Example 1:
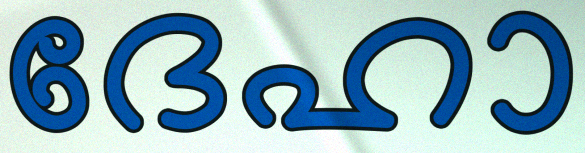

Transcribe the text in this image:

ദേഹാ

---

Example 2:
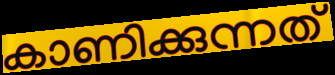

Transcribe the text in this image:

കാണിക്കുന്നത്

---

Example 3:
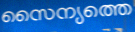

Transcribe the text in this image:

സൈന്യത്തെ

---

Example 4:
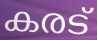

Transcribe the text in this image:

കരട്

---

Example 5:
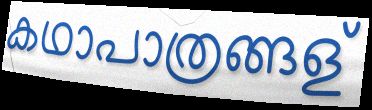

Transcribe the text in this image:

കഥാപാത്രങ്ങള്